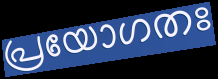
പ്രയോഗതഃ